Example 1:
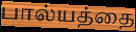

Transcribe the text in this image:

பால்யத்தை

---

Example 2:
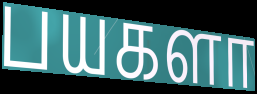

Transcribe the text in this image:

பயகளா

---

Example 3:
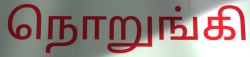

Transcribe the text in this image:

நொறுங்கி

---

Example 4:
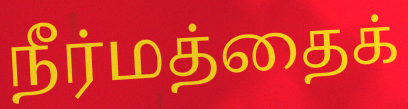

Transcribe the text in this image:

நீர்மத்தைக்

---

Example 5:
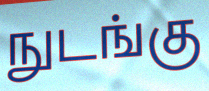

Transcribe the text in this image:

நுடங்கு